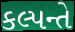
કલ્પન્તે